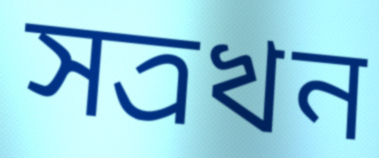
সত্ৰখন